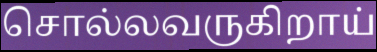
சொல்லவருகிறாய்